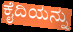
ಕೈದಿಯನ್ನು